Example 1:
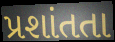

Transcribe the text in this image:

પ્રશાંતતા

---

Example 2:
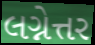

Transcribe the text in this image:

લગ્નેત્તર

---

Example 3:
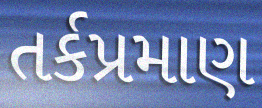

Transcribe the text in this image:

તર્કપ્રમાણ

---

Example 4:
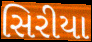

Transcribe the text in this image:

સિરીયા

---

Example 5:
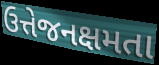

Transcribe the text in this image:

ઉત્તેજનક્ષમતા